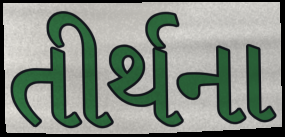
તીર્થના